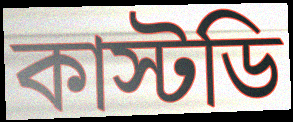
কাস্টডি